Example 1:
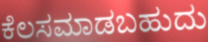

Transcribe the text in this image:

ಕೆಲಸಮಾಡಬಹುದು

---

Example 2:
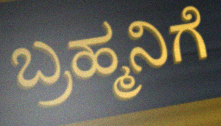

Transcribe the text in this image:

ಬ್ರಹ್ಮನಿಗೆ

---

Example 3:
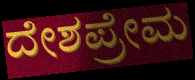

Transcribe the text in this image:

ದೇಶಪ್ರೇಮ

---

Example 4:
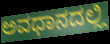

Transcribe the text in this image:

ಅವಧಾನದಲ್ಲಿ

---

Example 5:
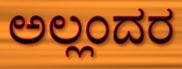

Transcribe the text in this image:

ಅಲ್ಲಂದರ